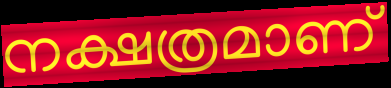
നക്ഷത്രമാണ്